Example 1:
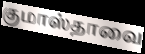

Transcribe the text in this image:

குமாஸ்தாவை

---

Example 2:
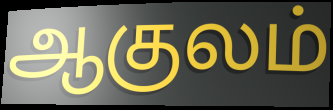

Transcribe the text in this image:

ஆகுலம்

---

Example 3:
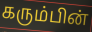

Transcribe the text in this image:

கரும்பின்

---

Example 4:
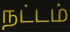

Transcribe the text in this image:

நட்டம்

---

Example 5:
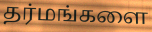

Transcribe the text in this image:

தர்மங்களை